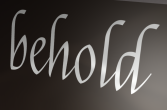
behold